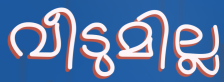
വീടുമില്ല